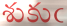
శుకుఁ